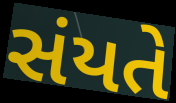
સંયતે